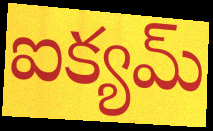
ఐక్యమ్